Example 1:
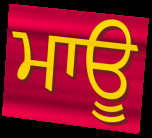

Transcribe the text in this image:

ਮਾਊ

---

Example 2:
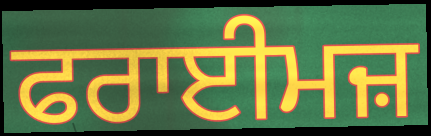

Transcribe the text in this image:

ਫਰਾਈਮਜ਼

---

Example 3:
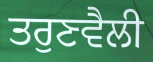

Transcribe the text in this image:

ਤਰੁਣਵੈਲੀ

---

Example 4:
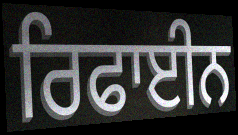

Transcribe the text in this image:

ਰਿਫਾਈਨ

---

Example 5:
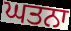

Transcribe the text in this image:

ਘਤਨਾ